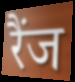
रैंज